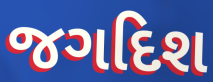
જગદિશ